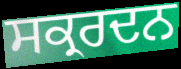
ਸਕ੍ਰਰਦਨ